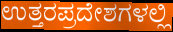
ಉತ್ತರಪ್ರದೇಶಗಳಲ್ಲಿ